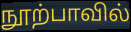
நூற்பாவில்